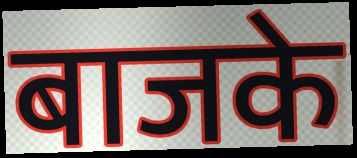
बाजके